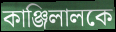
কাঞ্জিলালকে